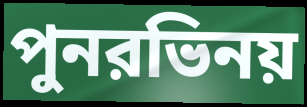
পুনরভিনয়